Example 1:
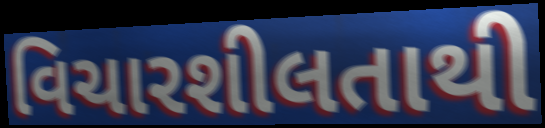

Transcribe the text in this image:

વિચારશીલતાથી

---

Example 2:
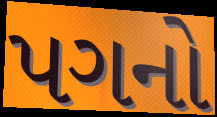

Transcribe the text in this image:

પગનો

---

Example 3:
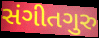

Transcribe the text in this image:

સંગીતગુરુ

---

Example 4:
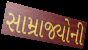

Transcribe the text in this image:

સામ્રાજ્યોની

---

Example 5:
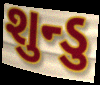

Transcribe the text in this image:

શુન્ડુ